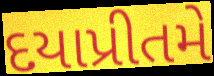
દયાપ્રીતમે